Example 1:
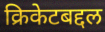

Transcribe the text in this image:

क्रिकेटबद्दल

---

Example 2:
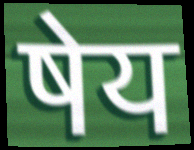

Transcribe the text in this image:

षेय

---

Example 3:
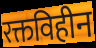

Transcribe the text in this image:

रक्तविहीन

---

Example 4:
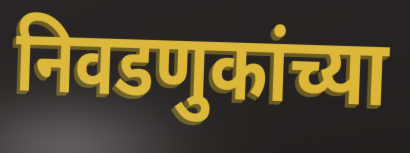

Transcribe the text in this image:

निवडणुकांच्या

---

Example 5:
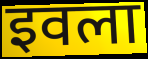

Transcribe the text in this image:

इवला